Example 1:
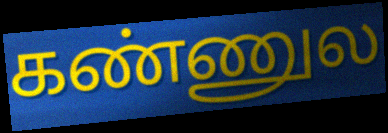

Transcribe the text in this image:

கண்ணுல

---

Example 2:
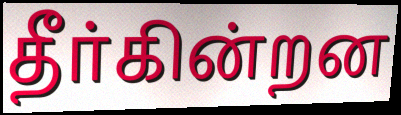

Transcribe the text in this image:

தீர்கின்றன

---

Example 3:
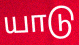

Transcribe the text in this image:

யாடு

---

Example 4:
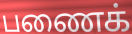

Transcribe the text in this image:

பணைக்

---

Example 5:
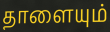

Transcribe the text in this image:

தாளையும்